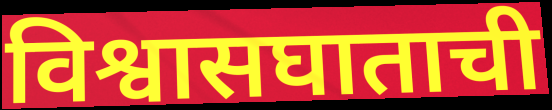
विश्वासघाताची